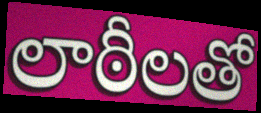
లాఠీలతో